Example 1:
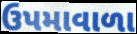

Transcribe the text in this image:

ઉપમાવાળા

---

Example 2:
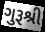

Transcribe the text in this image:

ગુરૂશ્રી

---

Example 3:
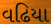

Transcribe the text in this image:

વઢિયા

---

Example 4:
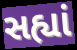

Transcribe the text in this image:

સહ્યાં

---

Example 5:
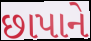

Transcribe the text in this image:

છાપાને